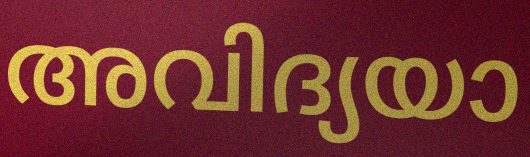
അവിദ്യയാ